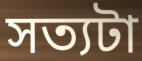
সত্যটা